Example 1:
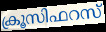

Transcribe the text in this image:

ക്രൂസിഫറസ്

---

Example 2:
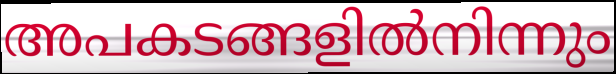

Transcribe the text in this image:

അപകടങ്ങളിൽനിന്നും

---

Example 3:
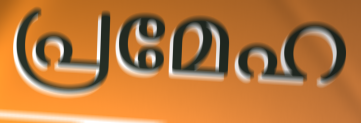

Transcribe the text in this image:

പ്രമേഹ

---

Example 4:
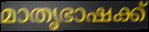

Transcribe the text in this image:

മാതൃഭാഷക്ക്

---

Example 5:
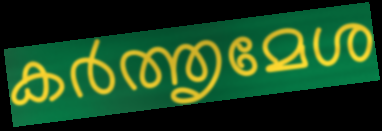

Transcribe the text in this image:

കർത്തൃമേശ